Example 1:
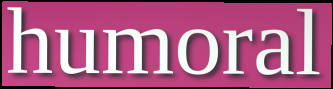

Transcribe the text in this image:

humoral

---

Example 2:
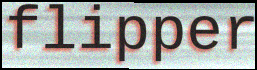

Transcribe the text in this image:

flipper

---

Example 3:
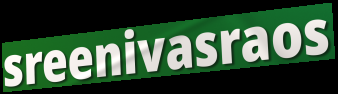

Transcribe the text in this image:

sreenivasraos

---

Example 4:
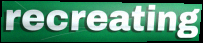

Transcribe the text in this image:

recreating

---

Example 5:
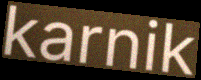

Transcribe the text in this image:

karnik